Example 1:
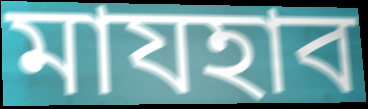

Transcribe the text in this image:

মাযহাব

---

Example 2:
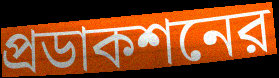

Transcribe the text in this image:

প্রডাকশনের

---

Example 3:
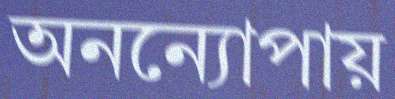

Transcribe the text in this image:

অনন্যোপায়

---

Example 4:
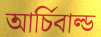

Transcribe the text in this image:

আর্চিবাল্ড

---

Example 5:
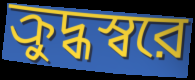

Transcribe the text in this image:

ক্রুদ্ধস্বরে